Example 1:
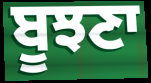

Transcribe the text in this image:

ਬੂਝਣਾ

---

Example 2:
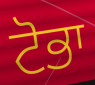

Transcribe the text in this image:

ਟੋਭਾ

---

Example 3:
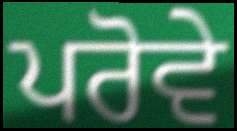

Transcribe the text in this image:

ਪਰੋਵੇ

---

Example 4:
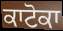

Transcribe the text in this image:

ਕਾਟੋਕਾ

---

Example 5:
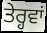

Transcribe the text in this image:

ਤੇਰ੍ਹਵਾਂ